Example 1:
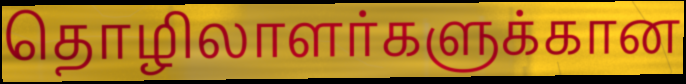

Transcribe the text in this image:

தொழிலாளர்களுக்கான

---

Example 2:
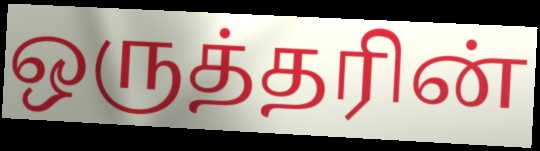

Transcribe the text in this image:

ஒருத்தரின்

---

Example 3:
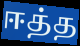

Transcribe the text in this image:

ஈத்த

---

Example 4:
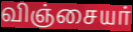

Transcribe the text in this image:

விஞ்சையர்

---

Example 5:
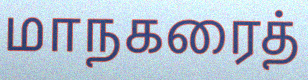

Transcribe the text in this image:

மாநகரைத்